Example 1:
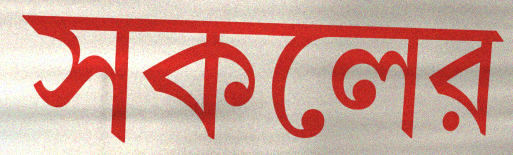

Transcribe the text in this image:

সকলের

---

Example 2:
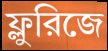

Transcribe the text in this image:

ফ্লুরিজে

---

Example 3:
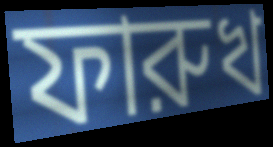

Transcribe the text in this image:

ফারুখ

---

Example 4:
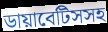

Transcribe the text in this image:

ডায়াবেটিসসহ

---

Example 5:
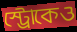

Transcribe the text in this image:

স্ট্রোকেও